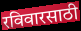
रविवारसाठी